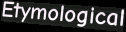
Etymological